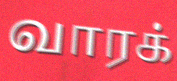
வாரக்